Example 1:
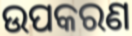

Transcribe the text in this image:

ଉପକରଣ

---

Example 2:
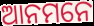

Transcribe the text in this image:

ଆନମନେ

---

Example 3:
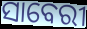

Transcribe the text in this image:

ସାବେରୀ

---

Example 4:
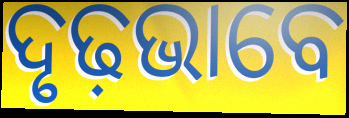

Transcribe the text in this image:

ଦୃଢ଼ଭାବେ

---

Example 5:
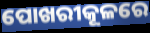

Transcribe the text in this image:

ପୋଖରୀକୂଳରେ